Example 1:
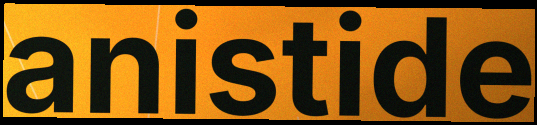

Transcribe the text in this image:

anistide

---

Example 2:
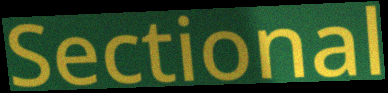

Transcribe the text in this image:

Sectional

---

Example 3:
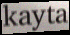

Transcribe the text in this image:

kayta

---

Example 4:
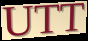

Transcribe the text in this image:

UTT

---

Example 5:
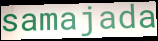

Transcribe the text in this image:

samajada